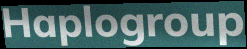
Haplogroup